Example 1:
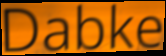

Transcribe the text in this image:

Dabke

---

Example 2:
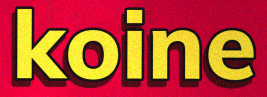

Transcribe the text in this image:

koine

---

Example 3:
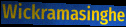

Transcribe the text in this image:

Wickramasinghe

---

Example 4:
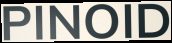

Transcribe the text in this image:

PINOID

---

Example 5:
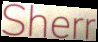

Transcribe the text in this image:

Sherr